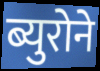
ब्युरोने